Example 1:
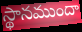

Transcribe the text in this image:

స్థానముందా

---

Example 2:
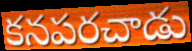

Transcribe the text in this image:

కనపరచాడు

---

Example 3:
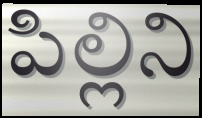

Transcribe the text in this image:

పిల్లిని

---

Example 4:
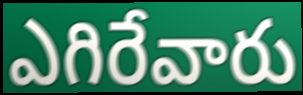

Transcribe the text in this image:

ఎగిరేవారు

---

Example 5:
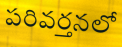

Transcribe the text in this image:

పరివర్తనలో